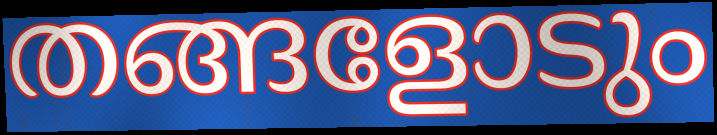
തങ്ങളോടും